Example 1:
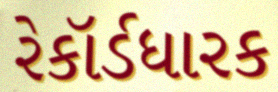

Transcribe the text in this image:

રેકૉર્ડધારક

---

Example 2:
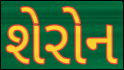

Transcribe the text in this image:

શેરોન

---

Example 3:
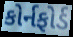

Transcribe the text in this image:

કોર્નફોર્ડ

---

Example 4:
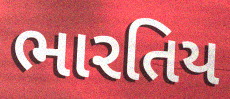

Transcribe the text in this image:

ભારતિય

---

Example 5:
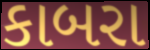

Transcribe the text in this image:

કાબરા